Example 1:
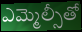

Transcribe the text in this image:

ఎమ్మెల్సీతో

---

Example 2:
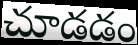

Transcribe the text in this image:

చూడడం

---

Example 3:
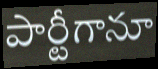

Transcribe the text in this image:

పార్టీగానూ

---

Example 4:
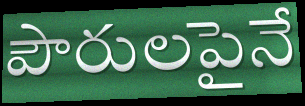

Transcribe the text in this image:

పౌరులపైనే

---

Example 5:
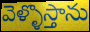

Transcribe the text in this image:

వెళ్ళొస్తాను